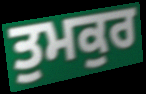
ਤੁਮਕੁਰ